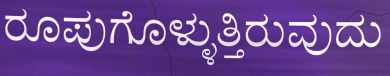
ರೂಪುಗೊಳ್ಳುತ್ತಿರುವುದು